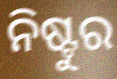
ନିଷ୍ଟୁର